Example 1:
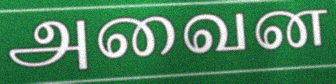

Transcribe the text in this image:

அவைன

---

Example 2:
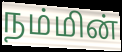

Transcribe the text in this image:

நம்மின்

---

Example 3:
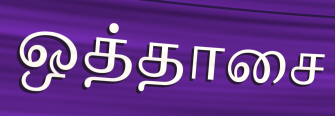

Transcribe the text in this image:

ஒத்தாசை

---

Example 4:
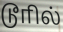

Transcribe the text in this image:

டூரில்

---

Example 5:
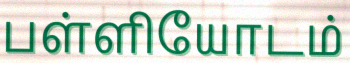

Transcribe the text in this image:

பள்ளியோடம்